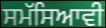
ਸਮੱਸਿਆਵੀ